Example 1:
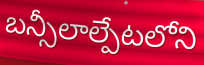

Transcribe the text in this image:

బన్సీలాల్పేటలోని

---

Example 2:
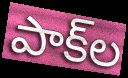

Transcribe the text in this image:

పాక్‌ల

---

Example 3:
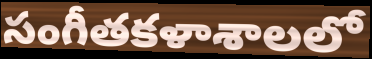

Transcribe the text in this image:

సంగీతకళాశాలలో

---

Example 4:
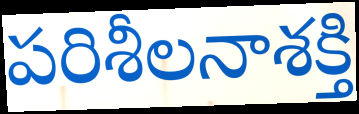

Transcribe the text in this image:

పరిశీలనాశక్తి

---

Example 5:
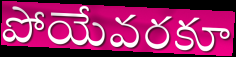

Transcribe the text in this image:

పోయేవరకూ